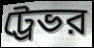
ট্রেভর